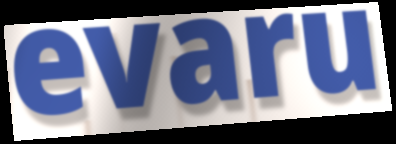
evaru